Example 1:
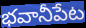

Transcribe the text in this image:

భవానీపేట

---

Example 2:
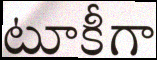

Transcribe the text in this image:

టూకీగా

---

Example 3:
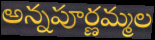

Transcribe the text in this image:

అన్నపూర్ణమ్మల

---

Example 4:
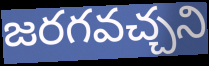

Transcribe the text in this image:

జరగవచ్చని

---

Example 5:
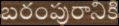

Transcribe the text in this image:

బరంపురానికి